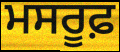
ਮਸਰੂਫ਼